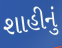
શાહીનું